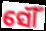
ସୌଁ